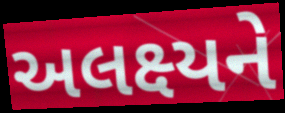
અલક્ષ્યને